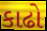
કાઢો